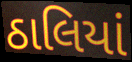
ઠાલિયાં